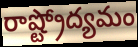
రాష్ట్రోద్యమం